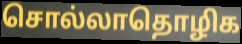
சொல்லாதொழிக